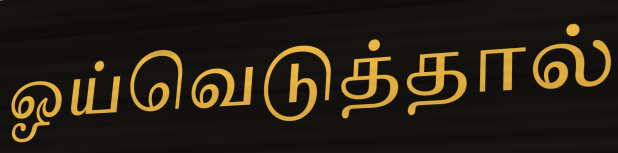
ஓய்வெடுத்தால்